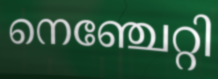
നെഞ്ചേറ്റി